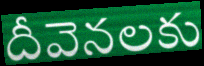
దీవెనలకు